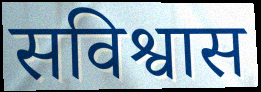
सविश्वास